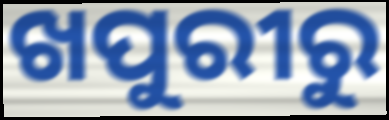
ଖପୁରୀରୁ